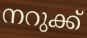
നറുക്ക്